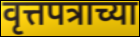
वृत्तपत्राच्या